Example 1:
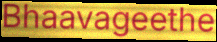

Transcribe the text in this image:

Bhaavageethe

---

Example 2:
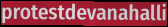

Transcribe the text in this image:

protestdevanahalli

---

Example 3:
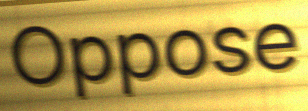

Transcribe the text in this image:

Oppose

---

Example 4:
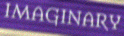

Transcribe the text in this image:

IMAGINARY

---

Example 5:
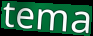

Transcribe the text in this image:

tema